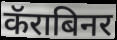
कॅराबिनर